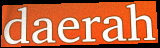
daerah